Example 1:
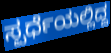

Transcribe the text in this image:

ಸ್ಪರ್ಧೆಯಲ್ಲಿದ್ದ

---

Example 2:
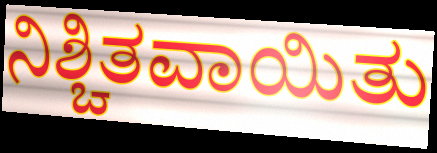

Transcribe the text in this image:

ನಿಶ್ಚಿತವಾಯಿತು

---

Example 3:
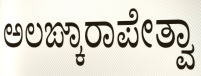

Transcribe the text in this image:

ಅಲಙ್ಕಾರಾಪೇತ್ವಾ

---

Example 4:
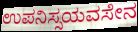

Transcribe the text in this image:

ಉಪನಿಸ್ಸಯವಸೇನ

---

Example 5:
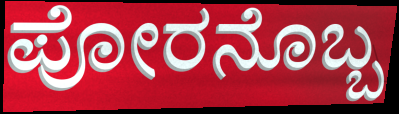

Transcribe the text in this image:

ಪೋರನೊಬ್ಬ